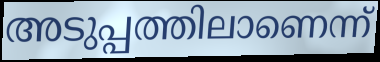
അടുപ്പത്തിലാണെന്ന്